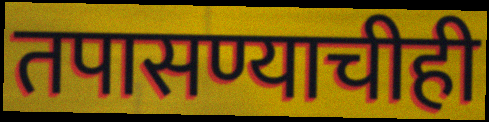
तपासण्याचीही